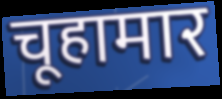
चूहामार